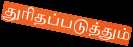
துரிதப்படுத்தும்